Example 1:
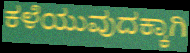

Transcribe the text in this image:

ಕಳೆಯುವುದಕ್ಕಾಗಿ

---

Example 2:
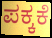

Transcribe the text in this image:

ಪಕ್ಕಕೆ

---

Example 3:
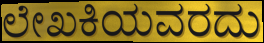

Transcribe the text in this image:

ಲೇಖಕಿಯವರದು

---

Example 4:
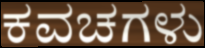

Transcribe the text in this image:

ಕವಚಗಳು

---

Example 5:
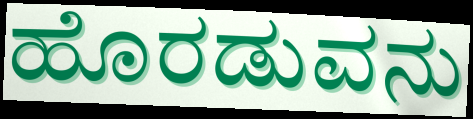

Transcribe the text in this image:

ಹೊರಡುವನು